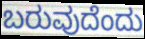
ಬರುವುದೆಂದು